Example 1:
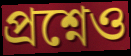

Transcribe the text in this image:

প্রশ্নেও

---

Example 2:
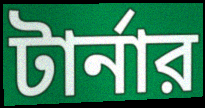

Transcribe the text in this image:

টার্নার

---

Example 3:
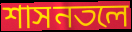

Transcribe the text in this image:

শাসনতলে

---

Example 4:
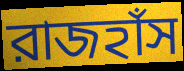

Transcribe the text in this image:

রাজহাঁস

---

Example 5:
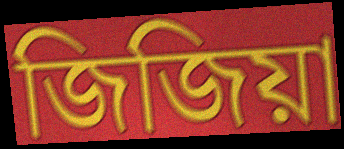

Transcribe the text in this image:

জিজিয়া